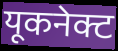
यूकनेक्ट